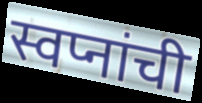
स्वप्नांची